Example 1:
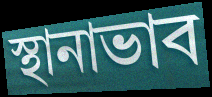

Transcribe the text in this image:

স্থানাভাব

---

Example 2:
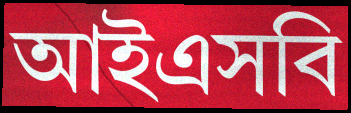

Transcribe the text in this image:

আইএসবি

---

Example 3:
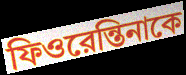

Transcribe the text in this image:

ফিওরেন্তিনাকে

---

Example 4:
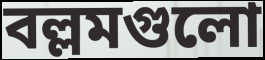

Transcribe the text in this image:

বল্লমগুলো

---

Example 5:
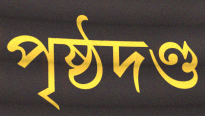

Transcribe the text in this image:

পৃষ্ঠদণ্ড